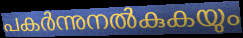
പകർന്നുനൽകുകയും